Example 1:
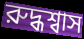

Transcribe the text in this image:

রুদ্ধশ্বাস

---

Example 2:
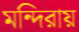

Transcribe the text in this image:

মন্দিরায়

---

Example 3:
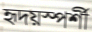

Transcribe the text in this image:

হৃদয়স্পর্শী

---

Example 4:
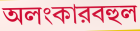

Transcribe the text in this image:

অলংকারবহুল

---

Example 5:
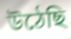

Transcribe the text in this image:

উঠেছি